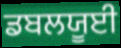
ਡਬਲਯੂਈ